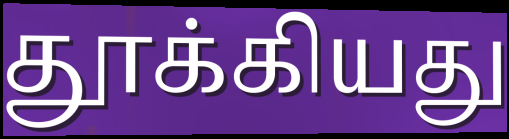
தூக்கியது